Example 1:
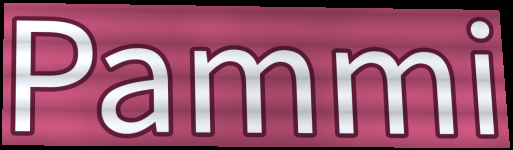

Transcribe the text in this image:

Pammi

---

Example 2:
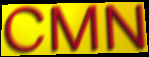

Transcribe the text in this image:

CMN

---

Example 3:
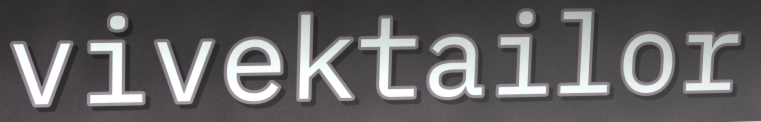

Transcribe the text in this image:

vivektailor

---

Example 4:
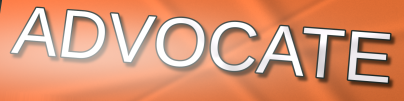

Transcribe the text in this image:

ADVOCATE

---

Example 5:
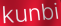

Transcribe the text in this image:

kunbi